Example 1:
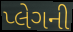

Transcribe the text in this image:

પ્લેગની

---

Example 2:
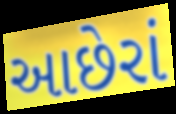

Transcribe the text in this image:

આછેરાં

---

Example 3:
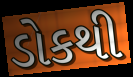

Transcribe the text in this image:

ડોકથી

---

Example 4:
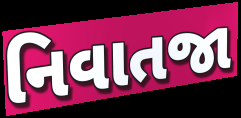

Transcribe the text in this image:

નિવાતજા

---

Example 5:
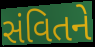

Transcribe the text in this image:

સંવિતને